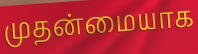
முதன்மையாக